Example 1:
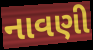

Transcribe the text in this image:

નાવણી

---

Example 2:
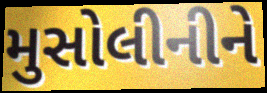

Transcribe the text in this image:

મુસોલીનીને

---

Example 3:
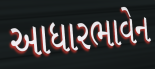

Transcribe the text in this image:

આધારભાવેન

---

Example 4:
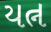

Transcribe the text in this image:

યત્ન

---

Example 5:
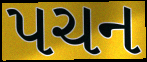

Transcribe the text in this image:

પચન